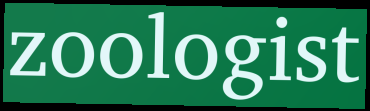
zoologist